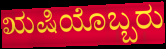
ಋಷಿಯೊಬ್ಬರು